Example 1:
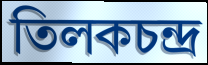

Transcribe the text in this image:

তিলকচন্দ্র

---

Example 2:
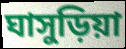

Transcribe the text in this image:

ঘাসুড়িয়া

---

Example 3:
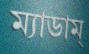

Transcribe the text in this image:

ম্যাডাম্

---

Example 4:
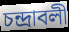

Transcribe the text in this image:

চন্দ্রাবলী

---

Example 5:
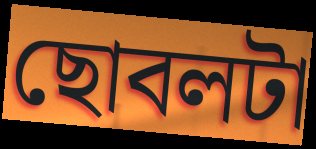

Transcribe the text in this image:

ছোবলটা